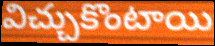
విచ్చుకొంటాయి